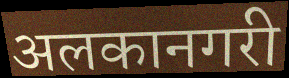
अलकानगरी